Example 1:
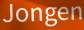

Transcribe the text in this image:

Jongen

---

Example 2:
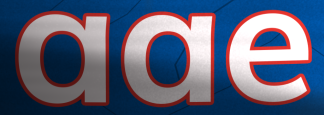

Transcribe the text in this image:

aae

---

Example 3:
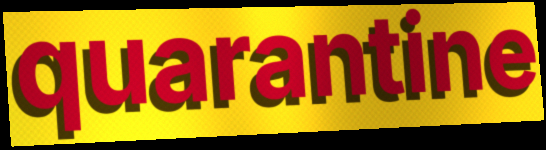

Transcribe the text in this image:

quarantine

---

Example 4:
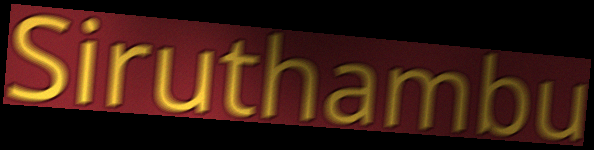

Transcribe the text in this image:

Siruthambu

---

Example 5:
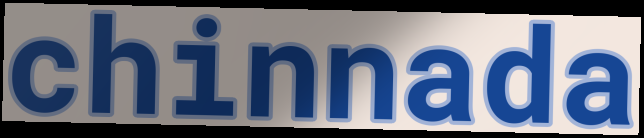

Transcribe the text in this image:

chinnada